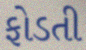
ફોડતી